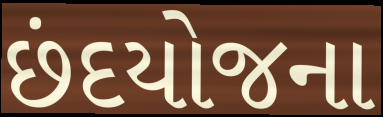
છંદયોજના